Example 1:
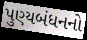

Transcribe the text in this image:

પુણ્યબંધનનો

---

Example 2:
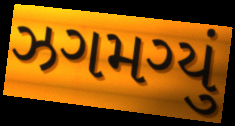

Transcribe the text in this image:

ઝગમગ્યું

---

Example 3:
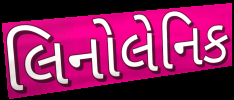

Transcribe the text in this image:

લિનોલેનિક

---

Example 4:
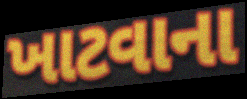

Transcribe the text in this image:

ખાટવાના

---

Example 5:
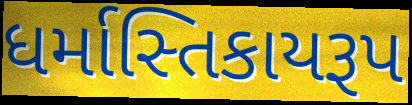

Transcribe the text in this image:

ધર્માસ્તિકાયરૂપ